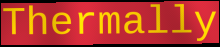
Thermally